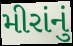
મીરાંનું